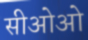
सीओओ